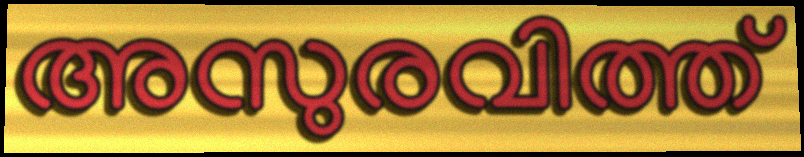
അസുരവിത്ത്